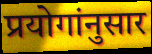
प्रयोगांनुसार